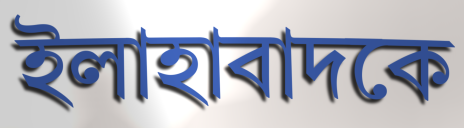
ইলাহাবাদকে